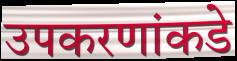
उपकरणांकडे